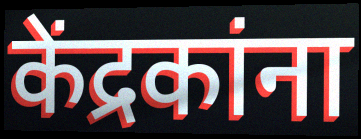
केंद्रकांना